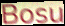
Bosu